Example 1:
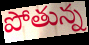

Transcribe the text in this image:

పోతున్న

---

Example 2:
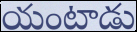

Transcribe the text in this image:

యంటాడు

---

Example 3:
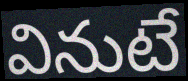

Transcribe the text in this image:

వినుటే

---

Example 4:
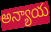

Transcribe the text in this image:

అన్యాయ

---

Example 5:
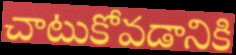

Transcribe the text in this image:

చాటుకోవడానికి